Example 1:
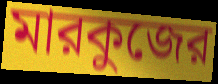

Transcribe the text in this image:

মারকুজের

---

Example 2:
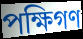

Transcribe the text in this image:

পক্ষিগণ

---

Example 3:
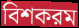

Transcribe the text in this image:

বিশকরম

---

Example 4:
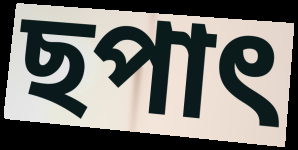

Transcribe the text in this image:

ছপাৎ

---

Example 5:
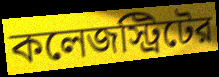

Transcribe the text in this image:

কলেজস্ট্রিটের